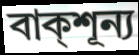
বাক্শূন্য